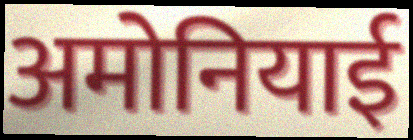
अमोनियाई